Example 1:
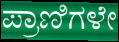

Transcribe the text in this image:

ಪ್ರಾಣಿಗಳೇ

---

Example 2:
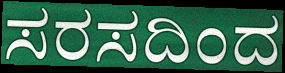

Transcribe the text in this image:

ಸರಸದಿಂದ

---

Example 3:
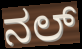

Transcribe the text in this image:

ನಲ್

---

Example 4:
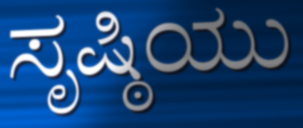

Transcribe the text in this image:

ಸೃಷ್ಠಿಯು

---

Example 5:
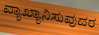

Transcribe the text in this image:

ವ್ಯಾಖ್ಯಾನಿಸುವುದರ